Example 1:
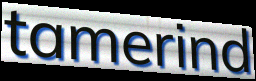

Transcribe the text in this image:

tamerind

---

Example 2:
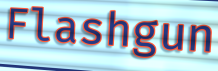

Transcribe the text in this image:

Flashgun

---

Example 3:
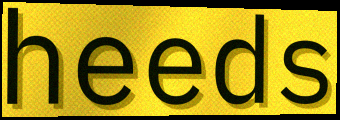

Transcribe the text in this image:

heeds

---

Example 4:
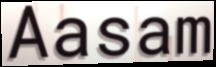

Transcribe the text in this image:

Aasam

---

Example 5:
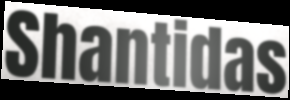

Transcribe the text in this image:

Shantidas